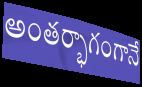
అంతర్భాగంగానే